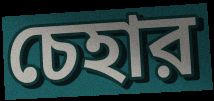
চেহার